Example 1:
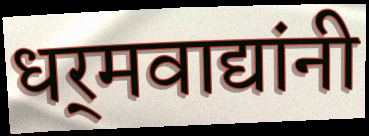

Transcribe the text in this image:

धर्मवाद्यांनी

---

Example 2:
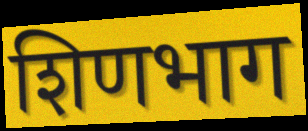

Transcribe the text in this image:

शिणभाग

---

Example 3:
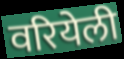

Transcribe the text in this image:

वरियेली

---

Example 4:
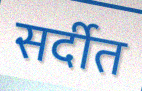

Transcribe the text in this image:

सर्दीत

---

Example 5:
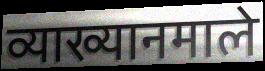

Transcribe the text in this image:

व्याख्यानमाले